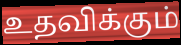
உதவிக்கும்